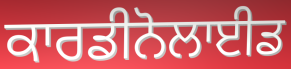
ਕਾਰਡੀਨੋਲਾਈਡ